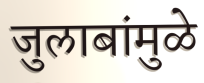
जुलाबांमुळे